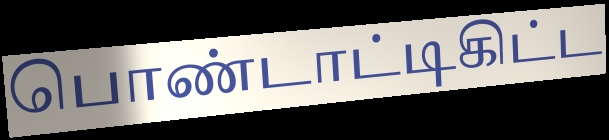
பொண்டாட்டிகிட்ட